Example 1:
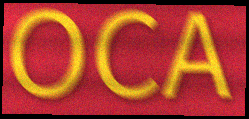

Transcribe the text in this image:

OCA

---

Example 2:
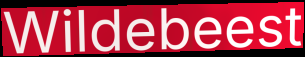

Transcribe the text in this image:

Wildebeest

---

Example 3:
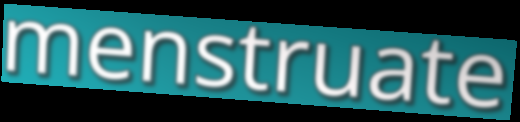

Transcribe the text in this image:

menstruate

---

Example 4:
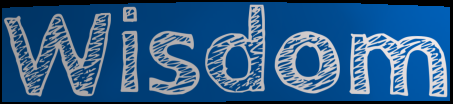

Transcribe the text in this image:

Wisdom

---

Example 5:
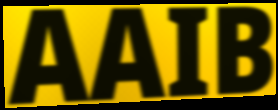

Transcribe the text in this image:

AAIB